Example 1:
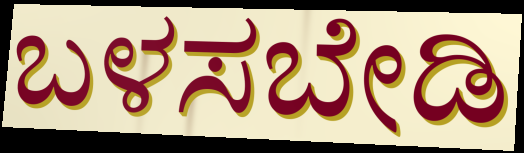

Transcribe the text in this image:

ಬಳಸಬೇಡಿ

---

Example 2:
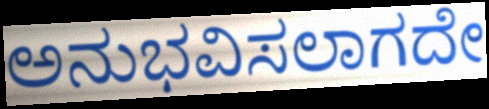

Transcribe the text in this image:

ಅನುಭವಿಸಲಾಗದೇ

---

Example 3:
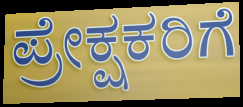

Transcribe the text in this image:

ಪ್ರೇಕ್ಷಕರಿಗೆ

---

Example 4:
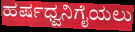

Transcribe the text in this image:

ಹರ್ಷಧ್ವನಿಗೈಯಲು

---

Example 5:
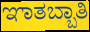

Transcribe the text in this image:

ಞಾತಬ್ಬಾತಿ